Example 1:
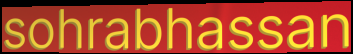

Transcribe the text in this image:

sohrabhassan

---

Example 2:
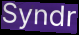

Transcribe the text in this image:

Syndr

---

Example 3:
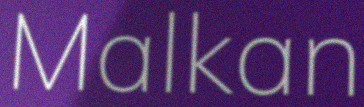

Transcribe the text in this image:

Malkan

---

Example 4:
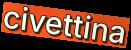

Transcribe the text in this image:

civettina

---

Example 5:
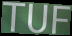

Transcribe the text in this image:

TUF